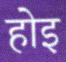
होइ